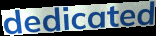
dedicated